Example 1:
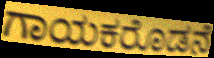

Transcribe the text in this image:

ಗಾಯಕರೊಡನೆ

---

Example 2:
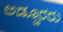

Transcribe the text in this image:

ಅಡ್ಡೂರರು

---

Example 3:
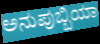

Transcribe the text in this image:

ಅನುಪುಬ್ಬಿಯಾ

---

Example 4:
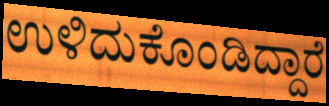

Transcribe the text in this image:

ಉಳಿದುಕೊಂಡಿದ್ದಾರೆ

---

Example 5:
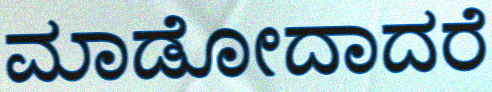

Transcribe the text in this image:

ಮಾಡೋದಾದರೆ